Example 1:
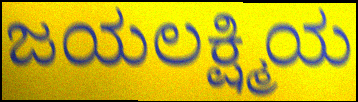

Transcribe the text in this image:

ಜಯಲಕ್ಷ್ಮಿಯ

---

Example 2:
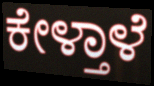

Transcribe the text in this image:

ಕೇಳ್ತಾಳೆ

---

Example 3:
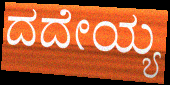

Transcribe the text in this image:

ದದೇಯ್ಯ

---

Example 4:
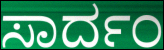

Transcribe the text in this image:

ಸಾರ್ದಂ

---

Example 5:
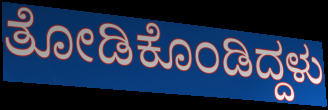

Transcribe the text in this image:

ತೋಡಿಕೊಂಡಿದ್ದಳು